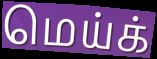
மெய்க்